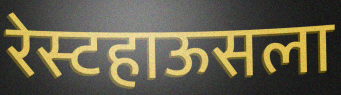
रेस्टहाऊसला